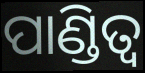
ପାଣ୍ଡିତ୍ୱ